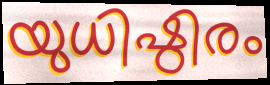
യുധിഷ്ഠിരം